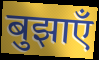
बुझाएँ